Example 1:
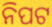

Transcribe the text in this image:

ନିପଟ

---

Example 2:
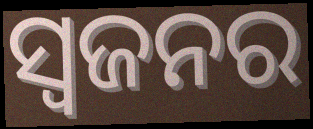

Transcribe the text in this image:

ସ୍ୱଜନର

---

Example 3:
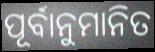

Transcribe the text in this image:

ପୂର୍ବାନୁମାନିତ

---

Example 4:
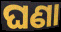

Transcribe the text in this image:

ଘଣା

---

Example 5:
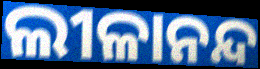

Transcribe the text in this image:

ଲୀଳାନନ୍ଦ